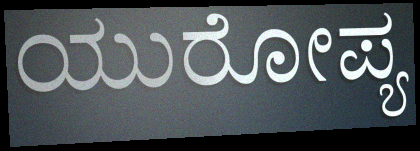
ಯುರೋಪ್ಯ